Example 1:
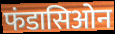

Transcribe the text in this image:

फंडासिओन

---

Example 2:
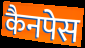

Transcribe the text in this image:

कैनपेस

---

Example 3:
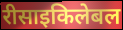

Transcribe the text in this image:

रीसाइकिलेबल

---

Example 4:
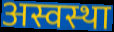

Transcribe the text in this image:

अस्वस्था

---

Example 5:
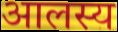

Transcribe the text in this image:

आलस्‍य